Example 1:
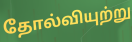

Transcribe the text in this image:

தோல்வியுற்று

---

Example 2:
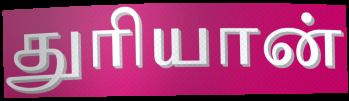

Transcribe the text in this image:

துரியான்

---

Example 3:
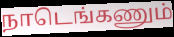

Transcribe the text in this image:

நாடெங்கணும்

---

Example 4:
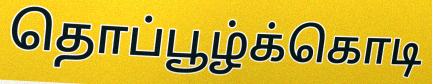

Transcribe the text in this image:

தொப்பூழ்க்கொடி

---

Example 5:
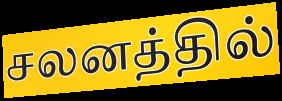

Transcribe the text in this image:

சலனத்தில்